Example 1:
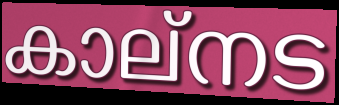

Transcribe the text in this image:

കാല്നട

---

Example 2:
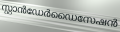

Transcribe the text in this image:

സ്റ്റാൻഡേർഡൈസേഷൻ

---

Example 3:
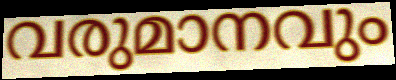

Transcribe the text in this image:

വരുമാനവും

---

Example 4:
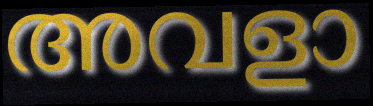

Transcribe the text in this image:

അവളാ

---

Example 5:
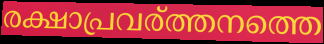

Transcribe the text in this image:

രക്ഷാപ്രവര്ത്തനത്തെ